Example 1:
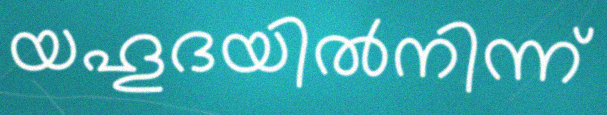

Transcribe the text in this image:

യഹൂദയിൽനിന്ന്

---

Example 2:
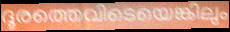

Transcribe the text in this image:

ദൂരത്തെവിടെയെങ്കിലും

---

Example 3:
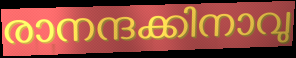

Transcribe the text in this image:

രാനന്ദക്കിനാവു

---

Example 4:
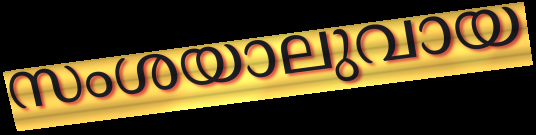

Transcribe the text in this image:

സംശയാലുവായ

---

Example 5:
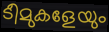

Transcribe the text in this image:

ടീമുകളേയും